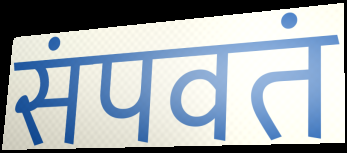
संपवतं